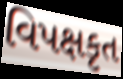
વિપક્ષકૃત